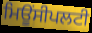
ਮਿਊਂਸੀਪਲਟੀ